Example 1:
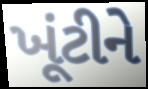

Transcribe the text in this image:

ખૂંટીને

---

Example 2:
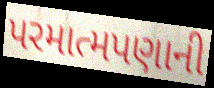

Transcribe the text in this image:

પરમાત્મપણાની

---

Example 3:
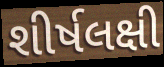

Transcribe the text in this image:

શીર્ષલક્ષી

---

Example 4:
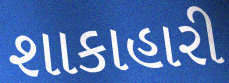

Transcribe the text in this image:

શાકાહારી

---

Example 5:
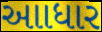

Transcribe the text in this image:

આાધાર